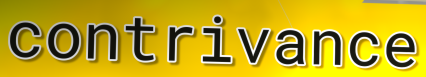
contrivance